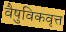
वैषुविकवृत्त